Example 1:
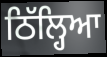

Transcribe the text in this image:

ਠਿੱਲ੍ਹਿਆ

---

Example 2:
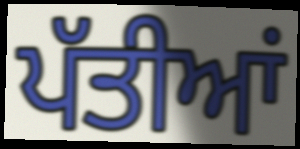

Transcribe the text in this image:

ਪੱਤੀਆਂ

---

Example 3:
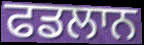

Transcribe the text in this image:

ਫਡਲਾਨ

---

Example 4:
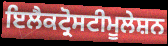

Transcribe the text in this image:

ਇਲੈਕਟ੍ਰੋਸਟੀਮੂਲੇਸ਼ਨ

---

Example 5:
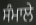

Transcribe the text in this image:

ਸੰਮਾਲੇ